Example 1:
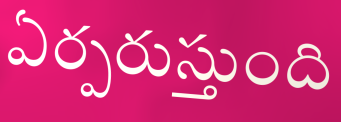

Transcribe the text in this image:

ఏర్పరుస్తుంది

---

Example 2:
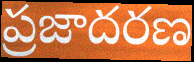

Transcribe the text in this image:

ప్రజాదరణ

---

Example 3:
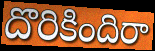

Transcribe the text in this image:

దొరికిందిరా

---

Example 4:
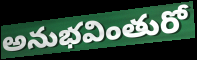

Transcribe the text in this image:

అనుభవింతురో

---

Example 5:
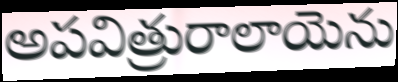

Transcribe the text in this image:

అపవిత్రురాలాయెను